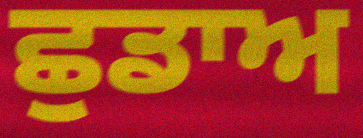
ਛੁਡਾਅ